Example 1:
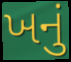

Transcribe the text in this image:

ખનું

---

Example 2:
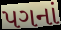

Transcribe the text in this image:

પગનાં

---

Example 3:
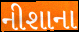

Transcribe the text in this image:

નીશાના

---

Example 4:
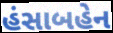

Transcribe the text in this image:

હંસાબહેન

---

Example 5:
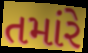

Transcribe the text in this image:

તમાંરે